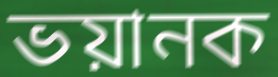
ভয়ানক